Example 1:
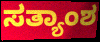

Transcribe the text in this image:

ಸತ್ಯಾಂಶ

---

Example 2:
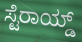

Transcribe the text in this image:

ಸ್ಟೆರಾಯ್ಡ್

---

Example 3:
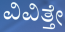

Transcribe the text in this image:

ವಿವಿತ್ತೇ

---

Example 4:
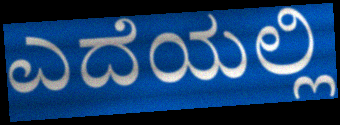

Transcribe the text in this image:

ಎದೆಯಲ್ಲಿ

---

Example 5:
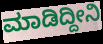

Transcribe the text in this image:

ಮಾಡಿದ್ದೀನಿ